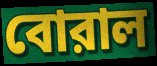
বোরাল